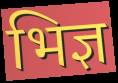
भिज्ञ